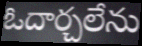
ఓదార్చలేను